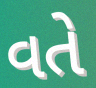
વતે